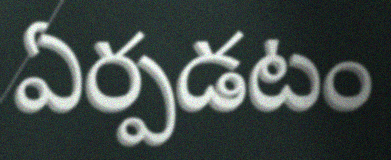
ఏర్పడటం